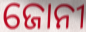
ଜୋନୀ